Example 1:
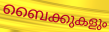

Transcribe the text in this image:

ബൈക്കുകളും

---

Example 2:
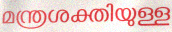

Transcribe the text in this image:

മന്ത്രശക്തിയുള്ള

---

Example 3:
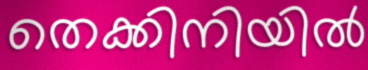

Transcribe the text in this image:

തെക്കിനിയിൽ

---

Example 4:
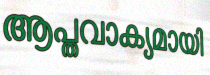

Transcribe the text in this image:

ആപ്തവാക്യമായി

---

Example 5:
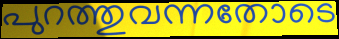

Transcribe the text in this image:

പുറത്തുവന്നതോടെ